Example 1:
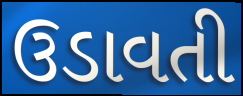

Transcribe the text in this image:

ઉડાવતી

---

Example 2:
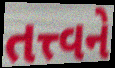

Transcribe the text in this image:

તત્ત્વને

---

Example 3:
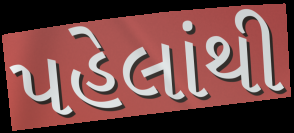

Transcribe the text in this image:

પહેલાંથી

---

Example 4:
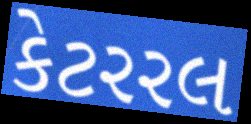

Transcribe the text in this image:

કેટરરલ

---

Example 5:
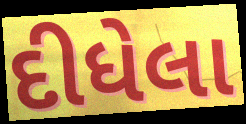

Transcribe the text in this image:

દીધેલા